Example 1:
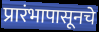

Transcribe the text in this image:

प्रारंभापासूनचे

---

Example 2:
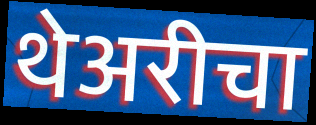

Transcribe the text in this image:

थेअरीचा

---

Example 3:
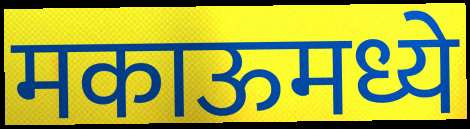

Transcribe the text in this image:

मकाऊमध्ये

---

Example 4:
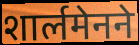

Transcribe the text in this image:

शार्लमेनने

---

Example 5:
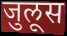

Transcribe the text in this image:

जुलूस